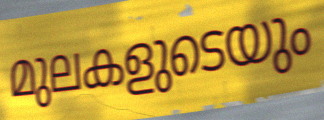
മുലകളുടെയും